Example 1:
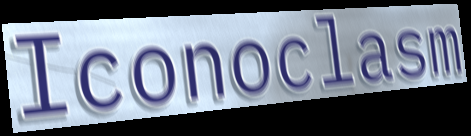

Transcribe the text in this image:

Iconoclasm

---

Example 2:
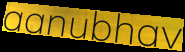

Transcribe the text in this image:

aanubhav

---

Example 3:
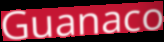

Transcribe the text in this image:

Guanaco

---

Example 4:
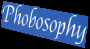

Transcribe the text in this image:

Phobosophy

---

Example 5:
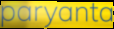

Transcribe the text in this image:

paryanta